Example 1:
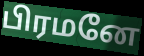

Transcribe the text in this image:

பிரமனே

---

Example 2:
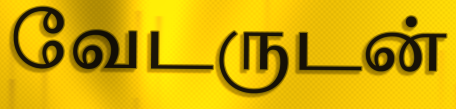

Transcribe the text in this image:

வேடருடன்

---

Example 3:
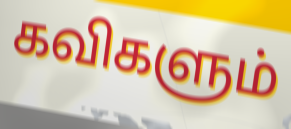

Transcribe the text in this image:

கவிகளும்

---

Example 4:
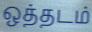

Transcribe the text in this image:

ஒத்தடம்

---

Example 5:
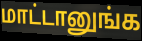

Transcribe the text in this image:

மாட்டானுங்க